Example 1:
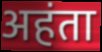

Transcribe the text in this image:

अहंता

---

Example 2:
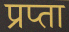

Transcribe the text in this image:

प्रप्ता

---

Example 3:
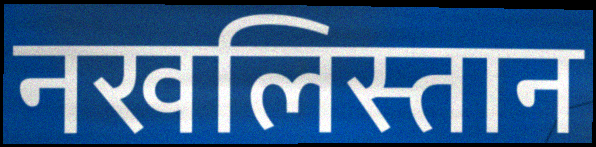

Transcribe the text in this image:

नखलिस्तान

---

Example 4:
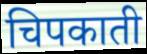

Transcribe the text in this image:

चिपकाती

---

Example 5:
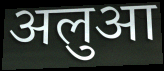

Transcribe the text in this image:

अलुआ